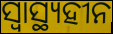
ସ୍ୱାସ୍ଥ୍ୟହୀନ